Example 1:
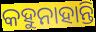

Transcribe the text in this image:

କହୁନାହାନ୍ତି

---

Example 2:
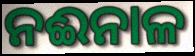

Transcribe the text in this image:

ନଈନାଳ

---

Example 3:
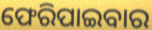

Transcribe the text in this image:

ଫେରିପାଇବାର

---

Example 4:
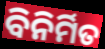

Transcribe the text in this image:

ବିନିର୍ମିତ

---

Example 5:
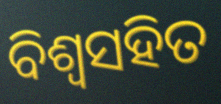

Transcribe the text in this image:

ବିଶ୍ଵସହିତ